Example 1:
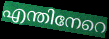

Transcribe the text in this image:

എന്തിനേറെ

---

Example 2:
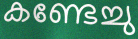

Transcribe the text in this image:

കണ്ടേച്ചു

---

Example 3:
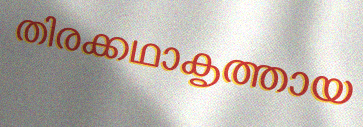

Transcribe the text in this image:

തിരക്കഥാകൃത്തായ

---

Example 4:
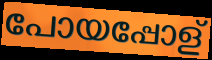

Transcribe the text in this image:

പോയപ്പോള്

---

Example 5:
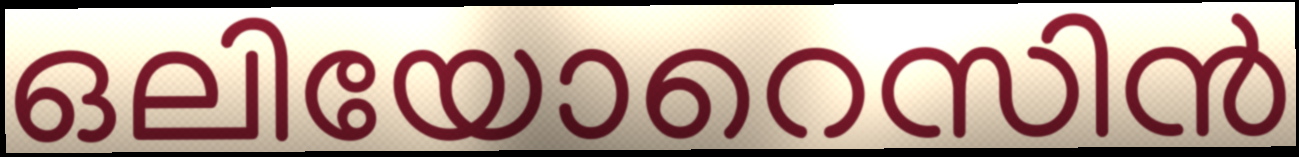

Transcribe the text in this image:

ഒലിയോറെസിൻ